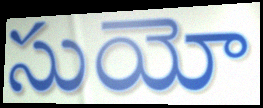
సుయో